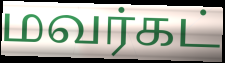
மவர்கட்